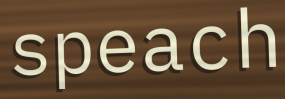
speach